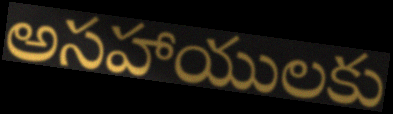
అసహాయులకు